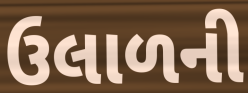
ઉલાળની